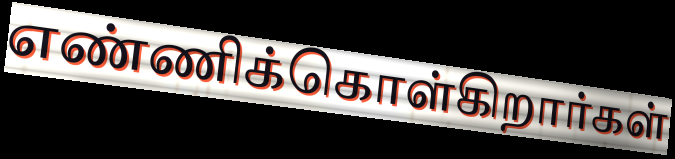
எண்ணிக்கொள்கிறார்கள்